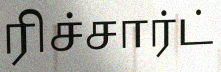
ரிச்சார்ட்